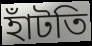
হাঁটতি